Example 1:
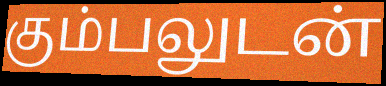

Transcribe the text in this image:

கும்பலுடன்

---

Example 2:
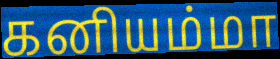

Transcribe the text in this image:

கனியம்மா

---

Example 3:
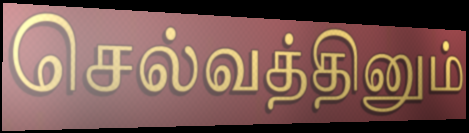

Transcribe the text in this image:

செல்வத்தினும்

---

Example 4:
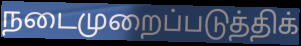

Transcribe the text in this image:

நடைமுறைப்படுத்திக்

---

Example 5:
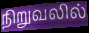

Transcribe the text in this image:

நிறுவலில்